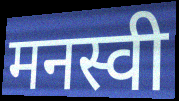
मनस्वी